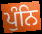
ਪੁੰਨਿ